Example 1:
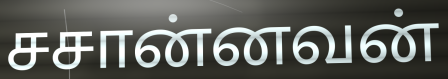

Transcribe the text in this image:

சசான்னவன்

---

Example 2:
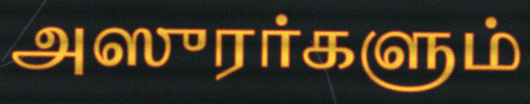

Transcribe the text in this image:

அஸுரர்களும்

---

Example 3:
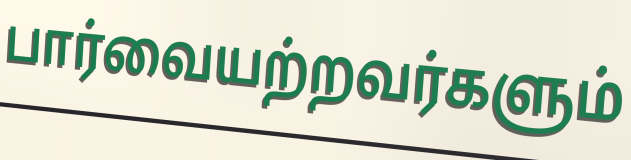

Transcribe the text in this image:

பார்வையற்றவர்களும்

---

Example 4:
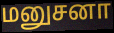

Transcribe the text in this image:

மனுசனா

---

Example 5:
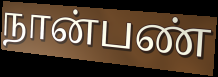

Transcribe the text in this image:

நான்பண்